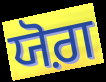
ਯੋਗ਼